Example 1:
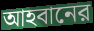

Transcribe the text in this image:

আহবানের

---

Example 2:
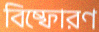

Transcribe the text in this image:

বিষ্ফোরণ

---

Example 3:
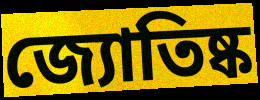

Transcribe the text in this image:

জ্যোতিষ্ক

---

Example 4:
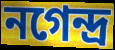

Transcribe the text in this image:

নগেন্দ্র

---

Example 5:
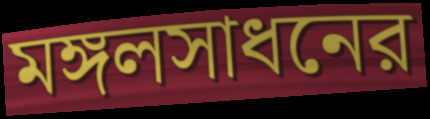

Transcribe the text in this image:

মঙ্গলসাধনের